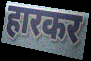
हारकर